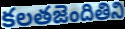
కలతజెందితిని